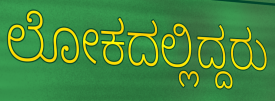
ಲೋಕದಲ್ಲಿದ್ದರು